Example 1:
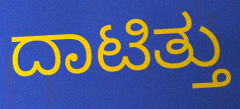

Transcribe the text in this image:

ದಾಟಿತ್ತು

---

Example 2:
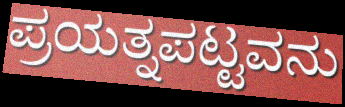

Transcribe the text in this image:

ಪ್ರಯತ್ನಪಟ್ಟವನು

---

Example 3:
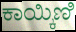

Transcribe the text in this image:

ಕಾಯ್ಕಿಣಿ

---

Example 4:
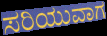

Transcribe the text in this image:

ಸರಿಯುವಾಗ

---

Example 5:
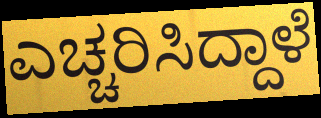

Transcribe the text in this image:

ಎಚ್ಚರಿಸಿದ್ದಾಳೆ